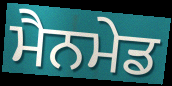
ਮੈਨਮੇਡ